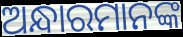
ଅନ୍ଧାରମାନଙ୍କ